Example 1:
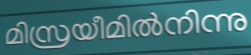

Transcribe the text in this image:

മിസ്രയീമിൽനിന്നു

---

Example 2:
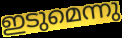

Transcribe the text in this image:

ഇടുമെന്നു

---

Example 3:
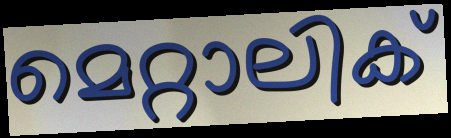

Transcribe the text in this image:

മെറ്റാലിക്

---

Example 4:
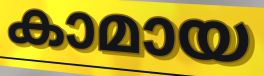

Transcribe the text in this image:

കാമായ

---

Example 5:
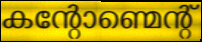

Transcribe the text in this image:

കന്റോണ്മെന്റ്